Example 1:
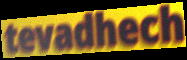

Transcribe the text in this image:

tevadhech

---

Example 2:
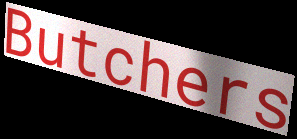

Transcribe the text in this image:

Butchers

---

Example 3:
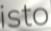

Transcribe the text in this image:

isto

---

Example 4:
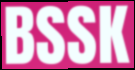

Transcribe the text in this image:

BSSK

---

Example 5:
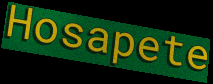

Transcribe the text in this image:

Hosapete